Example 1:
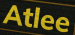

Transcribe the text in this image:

Atlee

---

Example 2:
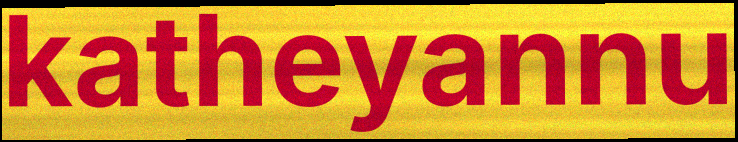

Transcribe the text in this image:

katheyannu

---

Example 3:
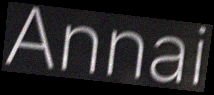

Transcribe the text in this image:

Annai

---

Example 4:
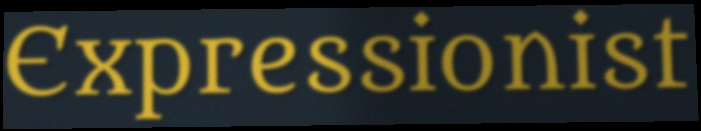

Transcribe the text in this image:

Expressionist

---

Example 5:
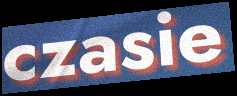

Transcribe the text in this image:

czasie